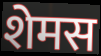
शेमस